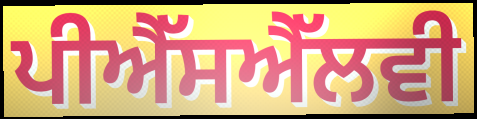
ਪੀਐੱਸਐੱਲਵੀ